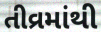
તીવ્રમાંથી